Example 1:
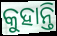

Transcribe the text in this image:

କୁହାନ୍ତି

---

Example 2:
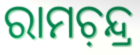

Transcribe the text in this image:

ରାମଚ଼ନ୍ଦ୍ର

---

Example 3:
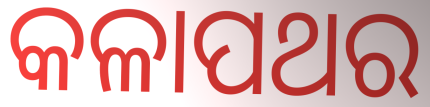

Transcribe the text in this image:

କଳାପଥର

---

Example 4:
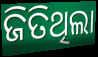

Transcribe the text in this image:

ଜିତିଥିଲା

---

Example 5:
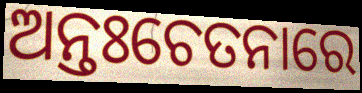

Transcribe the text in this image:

ଅନ୍ତଃଚେତନାରେ